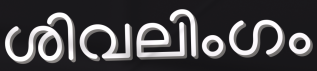
ശിവലിംഗം